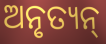
ଅନୃତ୍ୟନ୍